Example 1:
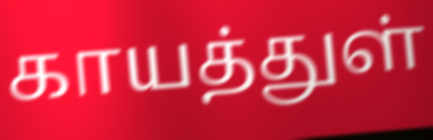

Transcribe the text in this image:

காயத்துள்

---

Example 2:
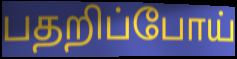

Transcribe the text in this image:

பதறிப்போய்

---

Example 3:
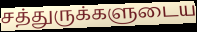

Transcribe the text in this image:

சத்துருக்களுடைய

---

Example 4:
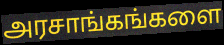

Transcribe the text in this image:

அரசாங்கங்களை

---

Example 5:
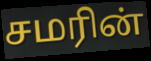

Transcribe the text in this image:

சமரின்